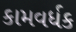
કામવર્ધક